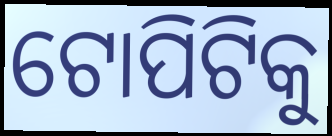
ଟୋପିଟିକୁ